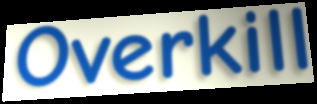
Overkill